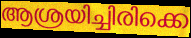
ആശ്രയിച്ചിരിക്കെ